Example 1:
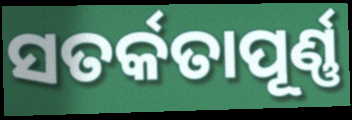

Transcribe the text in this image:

ସତର୍କତାପୂର୍ଣ୍ଣ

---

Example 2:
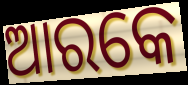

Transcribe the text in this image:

ଆରକେ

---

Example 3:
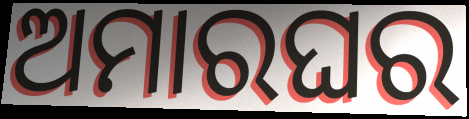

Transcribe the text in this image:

ଅମାରଘର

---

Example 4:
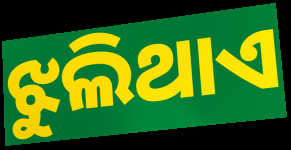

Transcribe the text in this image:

ଝୁଲିଥାଏ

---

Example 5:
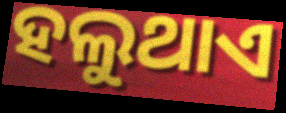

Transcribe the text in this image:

ହଲୁଥାଏ